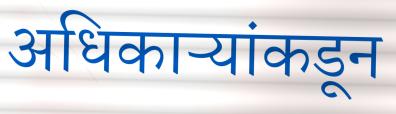
अधिकाऱ्यांकडून